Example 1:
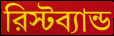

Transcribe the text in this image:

রিস্টব্যান্ড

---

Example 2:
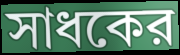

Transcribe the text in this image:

সাধকের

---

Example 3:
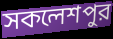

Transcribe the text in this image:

সকলেশপুর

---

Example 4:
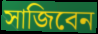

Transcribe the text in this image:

সাজিবেন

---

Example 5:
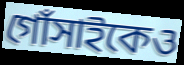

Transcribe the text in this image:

গোঁসাইকেও